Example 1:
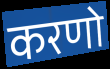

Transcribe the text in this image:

करणो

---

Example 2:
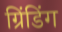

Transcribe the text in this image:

ग्रिंडिंग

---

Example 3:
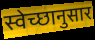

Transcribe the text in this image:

स्वेच्छानुसार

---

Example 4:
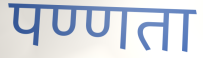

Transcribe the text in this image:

पण्णता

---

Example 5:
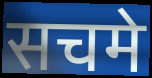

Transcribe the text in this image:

सचमे